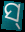
ସ୍